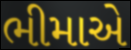
ભીમાએ